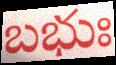
బభుః